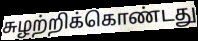
சுழற்றிக்கொண்டது